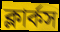
ক্লার্কস